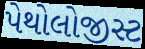
પેથોલોજીસ્ટ